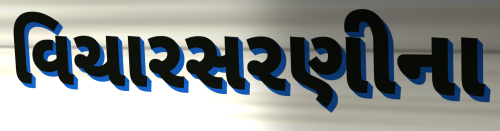
વિચારસરણીના